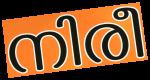
നിരീ